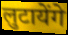
लुटायेंगे